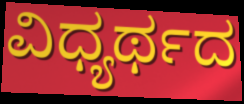
ವಿಧ್ಯರ್ಥದ